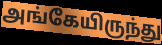
அங்கேயிருந்து